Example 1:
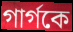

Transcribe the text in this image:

গার্গকে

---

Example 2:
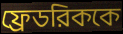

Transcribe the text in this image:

ফ্রেডরিককে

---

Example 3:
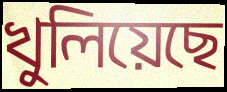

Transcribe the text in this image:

খুলিয়েছে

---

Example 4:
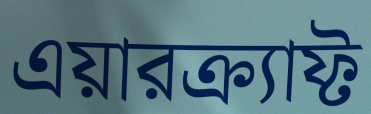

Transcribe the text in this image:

এয়ারক্র্যাফ্ট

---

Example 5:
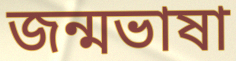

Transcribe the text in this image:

জন্মভাষা